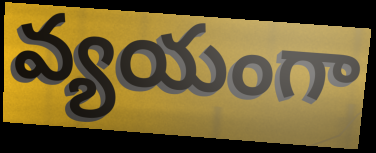
వ్యయంగా